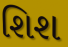
શિશ